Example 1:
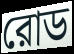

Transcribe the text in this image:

রোড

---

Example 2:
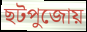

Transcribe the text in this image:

ছটপুজোয়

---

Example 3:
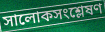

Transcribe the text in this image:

সালোকসংশ্লেষণ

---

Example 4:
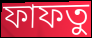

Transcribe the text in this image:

ফাফতু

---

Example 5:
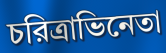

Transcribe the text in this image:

চরিত্রাভিনেতা